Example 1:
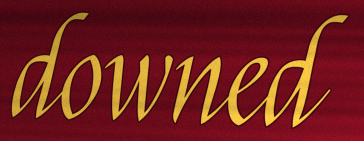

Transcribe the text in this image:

downed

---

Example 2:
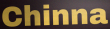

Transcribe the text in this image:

Chinna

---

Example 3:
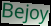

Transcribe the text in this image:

Bejoy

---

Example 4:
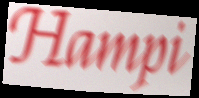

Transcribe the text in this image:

Hampi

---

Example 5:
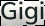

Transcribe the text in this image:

Gigi